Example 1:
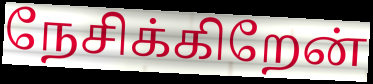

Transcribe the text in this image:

நேசிக்கிறேன்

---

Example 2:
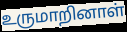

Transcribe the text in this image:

உருமாறினாள்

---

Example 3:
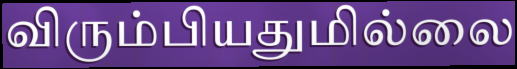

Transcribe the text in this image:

விரும்பியதுமில்லை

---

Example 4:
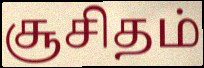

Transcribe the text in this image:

சூசிதம்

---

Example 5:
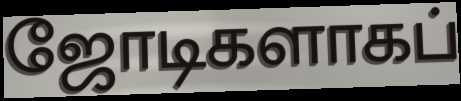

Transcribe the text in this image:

ஜோடிகளாகப்